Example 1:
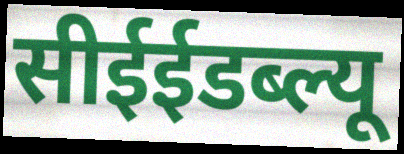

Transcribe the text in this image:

सीईईडब्ल्यू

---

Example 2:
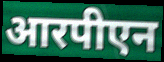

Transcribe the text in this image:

आरपीएन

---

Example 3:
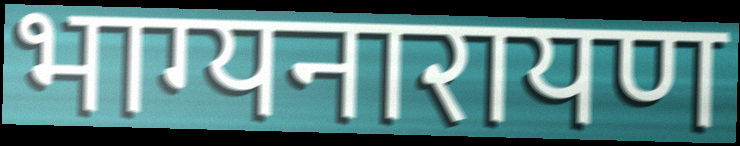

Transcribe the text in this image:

भाग्यनारायण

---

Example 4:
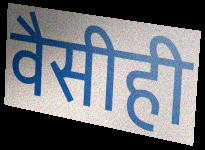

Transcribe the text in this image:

वैसीही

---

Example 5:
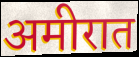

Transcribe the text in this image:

अमीरात